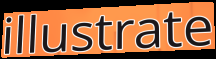
illustrate